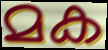
മക